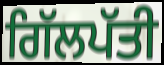
ਗਿੱਲਪੱਤੀ